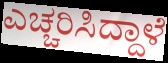
ಎಚ್ಚರಿಸಿದ್ದಾಳೆ